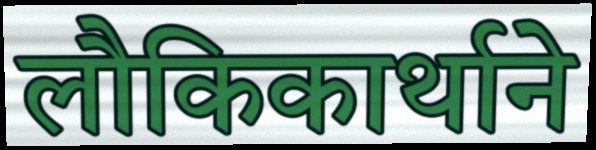
लौकिकार्थाने